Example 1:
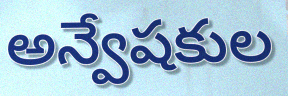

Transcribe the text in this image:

అన్వేషకుల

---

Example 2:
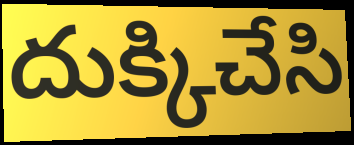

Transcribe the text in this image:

దుక్కిచేసి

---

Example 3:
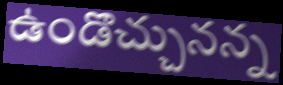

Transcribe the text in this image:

ఉండొచ్చునన్న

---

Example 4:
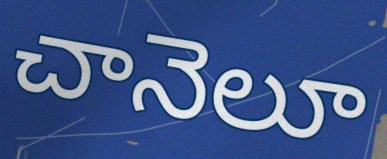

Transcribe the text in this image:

చానెలూ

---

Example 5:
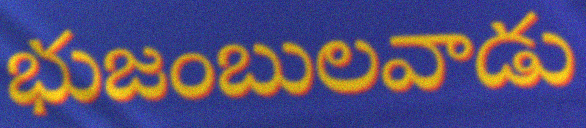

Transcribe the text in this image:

భుజంబులవాడు